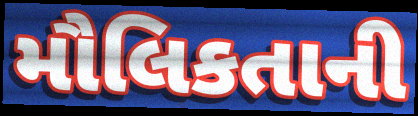
મૌલિકતાની